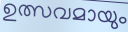
ഉത്സവമായും